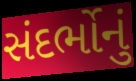
સંદર્ભોનું